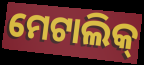
ମେଟାଲିକ୍